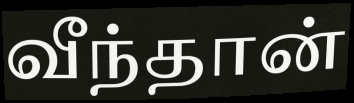
வீந்தான்